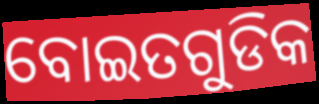
ବୋଇତଗୁଡିକ